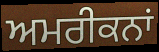
ਅਮਰੀਕਨਾਂ